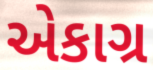
એકાગ્ર